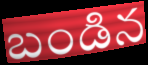
బండిన